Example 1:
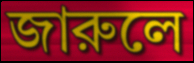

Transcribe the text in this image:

জারুলে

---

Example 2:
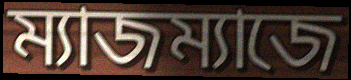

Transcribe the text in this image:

ম্যাজম্যাজে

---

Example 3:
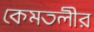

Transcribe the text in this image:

কেমতলীর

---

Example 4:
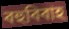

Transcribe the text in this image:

বহুবিবাহ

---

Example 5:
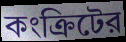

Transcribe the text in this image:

কংক্রিটের